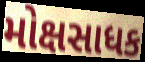
મોક્ષસાધક